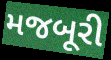
મજબૂરી